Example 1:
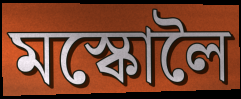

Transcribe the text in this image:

মস্কোলৈ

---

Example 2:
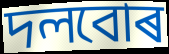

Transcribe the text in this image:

দলবোৰ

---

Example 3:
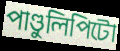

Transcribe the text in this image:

পাণ্ডুলিপিটো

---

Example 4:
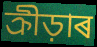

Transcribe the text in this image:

ক্ৰীড়াৰ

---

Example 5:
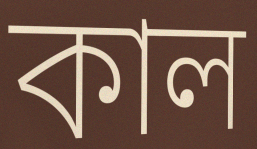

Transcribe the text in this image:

কাল